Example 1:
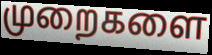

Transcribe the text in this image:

முறைகளை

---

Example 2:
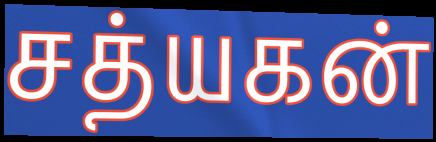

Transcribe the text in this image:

சத்யகன்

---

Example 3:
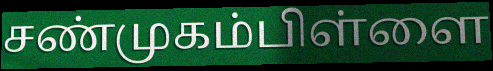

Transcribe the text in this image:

சண்முகம்பிள்ளை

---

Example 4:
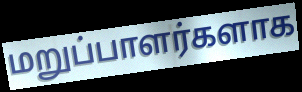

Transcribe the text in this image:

மறுப்பாளர்களாக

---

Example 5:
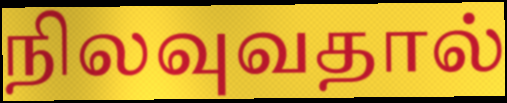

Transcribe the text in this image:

நிலவுவதால்